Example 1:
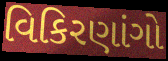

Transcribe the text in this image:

વિકિરણાંગો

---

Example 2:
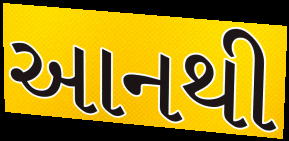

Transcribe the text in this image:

આનથી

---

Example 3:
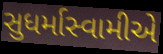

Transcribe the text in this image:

સુધર્માસ્વામીએ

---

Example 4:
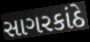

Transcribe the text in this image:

સાગરકાંઠે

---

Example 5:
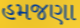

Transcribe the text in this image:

હમજણા